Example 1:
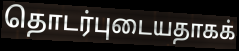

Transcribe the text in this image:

தொடர்புடையதாகக்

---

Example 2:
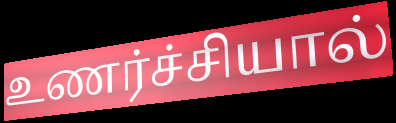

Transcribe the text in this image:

உணர்ச்சியால்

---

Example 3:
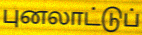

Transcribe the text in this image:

புனலாட்டுப்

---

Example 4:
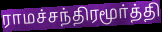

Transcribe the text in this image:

ராமச்சந்திரமூர்த்தி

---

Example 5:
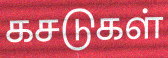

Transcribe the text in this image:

கசடுகள்